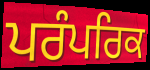
ਪਰੰਪਰਿਕ